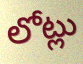
లోట్లు